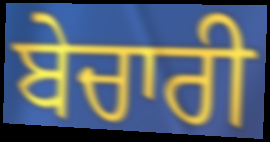
ਬੇਚਾਰੀ